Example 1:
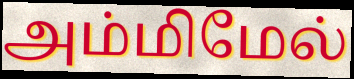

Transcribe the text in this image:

அம்மிமேல்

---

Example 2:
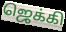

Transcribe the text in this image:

ஜெக்கி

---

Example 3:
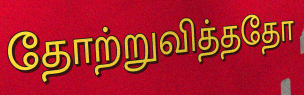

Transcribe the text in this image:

தோற்றுவித்ததோ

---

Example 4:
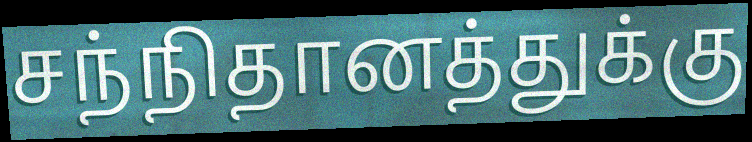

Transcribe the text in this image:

சந்நிதானத்துக்கு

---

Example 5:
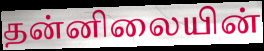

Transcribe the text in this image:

தன்னிலையின்